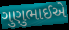
ગુણુભાઈએ